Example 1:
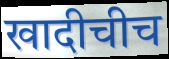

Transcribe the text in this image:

खादीचीच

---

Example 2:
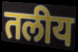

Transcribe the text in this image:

तलीय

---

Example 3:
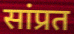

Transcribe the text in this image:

सांप्रत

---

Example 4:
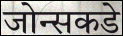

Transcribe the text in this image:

जोन्सकडे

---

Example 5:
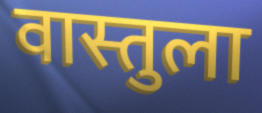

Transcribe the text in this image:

वास्तुला